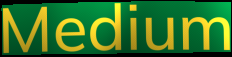
Medium